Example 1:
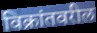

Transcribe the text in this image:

विक्रांतवरील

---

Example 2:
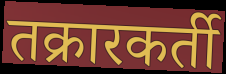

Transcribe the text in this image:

तक्रारकर्ती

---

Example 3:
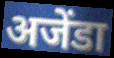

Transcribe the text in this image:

अजेंडा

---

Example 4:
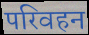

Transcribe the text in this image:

परिवहन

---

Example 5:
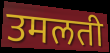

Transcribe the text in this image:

उमलती